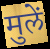
मुलें